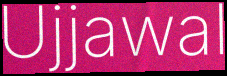
Ujjawal